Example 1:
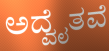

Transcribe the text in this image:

ಅದ್ವೈತವೆ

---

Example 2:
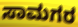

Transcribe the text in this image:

ಸಾಮಗರ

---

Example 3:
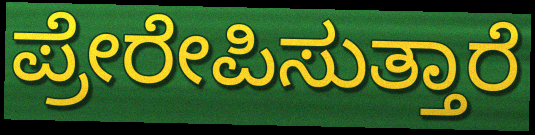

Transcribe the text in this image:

ಪ್ರೇರೇಪಿಸುತ್ತಾರೆ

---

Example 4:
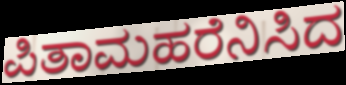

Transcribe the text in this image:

ಪಿತಾಮಹರೆನಿಸಿದ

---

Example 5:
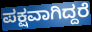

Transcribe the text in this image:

ಪಕ್ಷವಾಗಿದ್ದರೆ